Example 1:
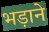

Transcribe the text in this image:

भड़ाने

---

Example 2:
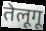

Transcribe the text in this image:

तेलूगू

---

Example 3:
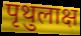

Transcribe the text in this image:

पृथुलाक्ष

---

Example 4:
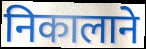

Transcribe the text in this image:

निकालाने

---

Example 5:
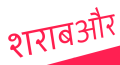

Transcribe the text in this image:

शराबऔर